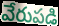
వేరుపడి